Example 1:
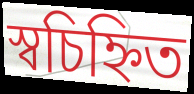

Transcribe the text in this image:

স্বচিহ্নিত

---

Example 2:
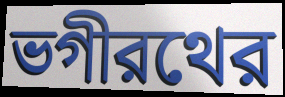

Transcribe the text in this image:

ভগীরথের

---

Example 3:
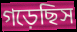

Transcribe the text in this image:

গড়েছিস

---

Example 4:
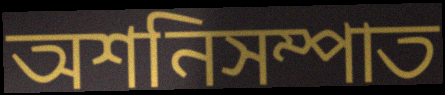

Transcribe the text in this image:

অশনিসম্পাত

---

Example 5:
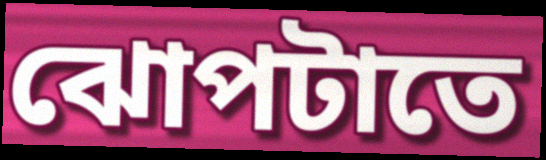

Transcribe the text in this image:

ঝোপটাতে